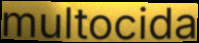
multocida